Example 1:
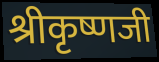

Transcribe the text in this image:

श्रीकृष्णजी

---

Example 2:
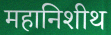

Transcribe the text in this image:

महानिशीथ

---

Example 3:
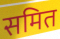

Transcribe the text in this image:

समित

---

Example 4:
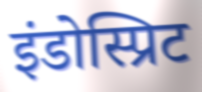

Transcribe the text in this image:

इंडोस्प्रिट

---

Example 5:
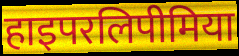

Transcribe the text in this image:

हाइपरलिपीमिया